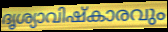
ദൃശ്യാവിഷ്കാരവും